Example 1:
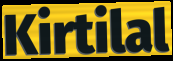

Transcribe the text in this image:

Kirtilal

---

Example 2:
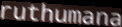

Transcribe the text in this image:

ruthumana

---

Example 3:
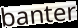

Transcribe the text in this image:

banter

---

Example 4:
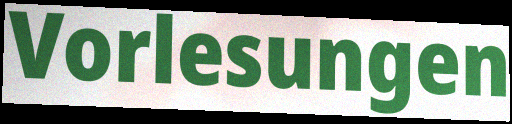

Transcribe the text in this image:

Vorlesungen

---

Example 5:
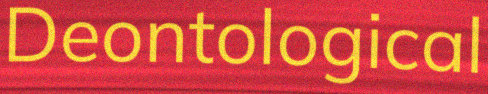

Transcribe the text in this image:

Deontological